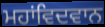
ਮਹਾਂਵਿਦਵਾਨ